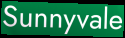
Sunnyvale